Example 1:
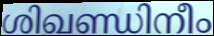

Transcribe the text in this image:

ശിഖണ്ഡിനീം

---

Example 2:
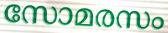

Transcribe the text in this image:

സോമരസം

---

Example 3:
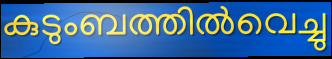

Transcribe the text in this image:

കുടുംബത്തിൽവെച്ചു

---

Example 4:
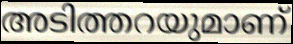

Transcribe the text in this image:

അടിത്തറയുമാണ്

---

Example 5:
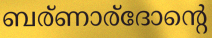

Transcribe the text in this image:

ബര്ണാര്ദോന്റെ